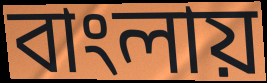
বাংলায়